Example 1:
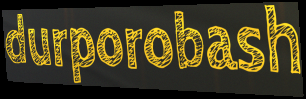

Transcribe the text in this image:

durporobash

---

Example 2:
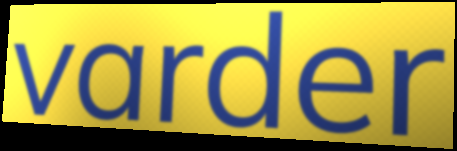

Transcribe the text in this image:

varder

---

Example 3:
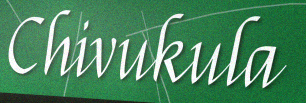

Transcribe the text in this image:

Chivukula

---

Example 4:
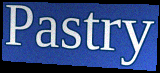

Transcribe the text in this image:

Pastry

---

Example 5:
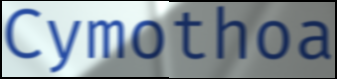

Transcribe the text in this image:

Cymothoa